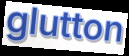
glutton